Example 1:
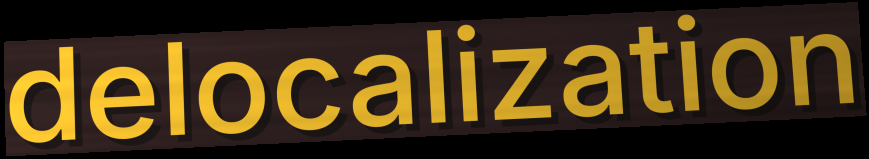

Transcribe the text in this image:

delocalization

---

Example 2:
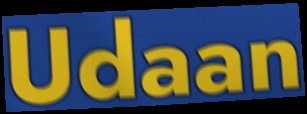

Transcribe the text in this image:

Udaan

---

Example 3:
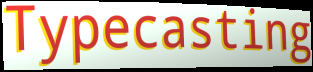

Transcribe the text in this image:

Typecasting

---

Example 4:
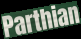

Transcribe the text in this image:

Parthian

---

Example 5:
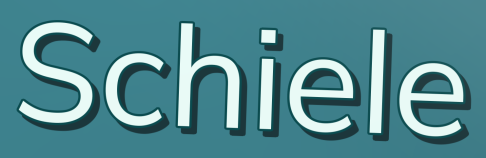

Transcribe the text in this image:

Schiele